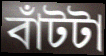
বাঁটটা